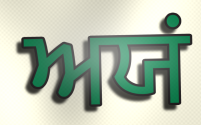
ਅਯਂ